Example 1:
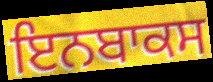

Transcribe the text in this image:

ਇਨਬਾਕਸ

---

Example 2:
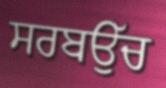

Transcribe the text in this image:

ਸਰਬਉੱਚ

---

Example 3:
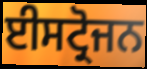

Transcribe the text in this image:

ਈਸਟ੍ਰੋਜਨ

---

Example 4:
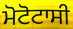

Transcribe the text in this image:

ਮੋਟੋਟਾਸੀ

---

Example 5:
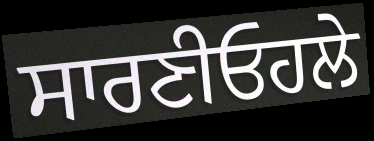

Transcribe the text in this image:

ਸਾਰਣੀਓਹਲੇ